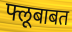
फ्लूबाबत